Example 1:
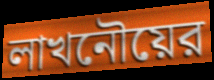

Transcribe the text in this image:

লাখনৌয়ের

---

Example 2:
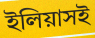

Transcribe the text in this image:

ইলিয়াসই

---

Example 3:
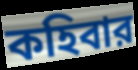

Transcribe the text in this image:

কহিবার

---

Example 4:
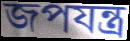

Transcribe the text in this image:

জপযন্ত্র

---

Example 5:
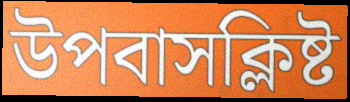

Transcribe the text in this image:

উপবাসক্লিষ্ট